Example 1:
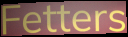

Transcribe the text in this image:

Fetters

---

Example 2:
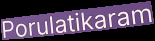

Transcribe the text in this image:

Porulatikaram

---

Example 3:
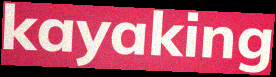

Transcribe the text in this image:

kayaking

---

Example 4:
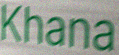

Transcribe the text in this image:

Khana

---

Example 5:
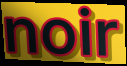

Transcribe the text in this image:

noir